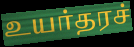
உயர்தரச்